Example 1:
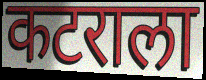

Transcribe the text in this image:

कटराला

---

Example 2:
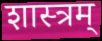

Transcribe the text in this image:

शास्त्रम्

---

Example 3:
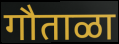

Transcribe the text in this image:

गौताळा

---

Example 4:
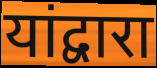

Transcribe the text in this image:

यांद्वारा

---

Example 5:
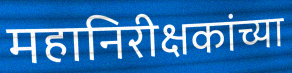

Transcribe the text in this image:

महानिरीक्षकांच्या